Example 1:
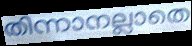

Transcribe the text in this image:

തിന്നാനല്ലാതെ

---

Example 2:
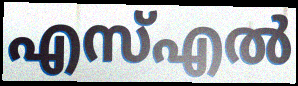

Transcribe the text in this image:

എസ്എൽ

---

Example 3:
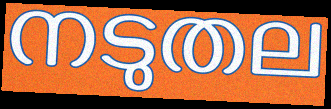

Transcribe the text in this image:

നടുതല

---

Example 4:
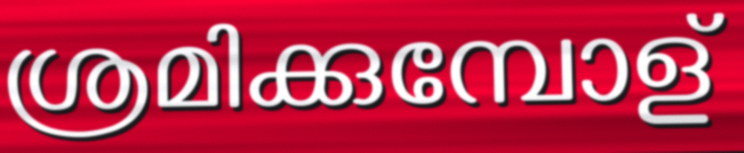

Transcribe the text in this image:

ശ്രമിക്കുമ്പോള്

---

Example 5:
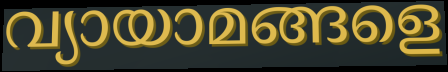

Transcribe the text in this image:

വ്യായാമങ്ങളെ